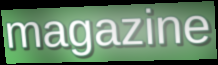
magazine